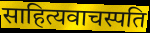
साहित्यवाचस्पति